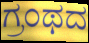
ಗ್ರಂಥದ